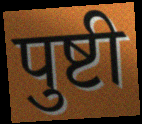
पुष्टी